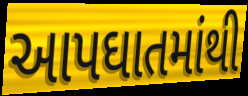
આપઘાતમાંથી